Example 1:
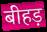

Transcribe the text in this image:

बीहड़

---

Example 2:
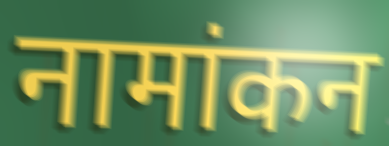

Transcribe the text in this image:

नामांकन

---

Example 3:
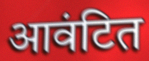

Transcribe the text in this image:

आवंटित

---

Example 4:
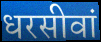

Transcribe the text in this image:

धरसीवां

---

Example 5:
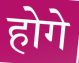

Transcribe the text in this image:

होगे